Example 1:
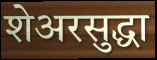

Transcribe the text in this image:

शेअरसुद्धा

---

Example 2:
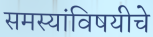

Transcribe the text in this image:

समस्यांविषयीचे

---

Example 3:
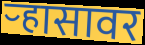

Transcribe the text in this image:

ऱ्हासावर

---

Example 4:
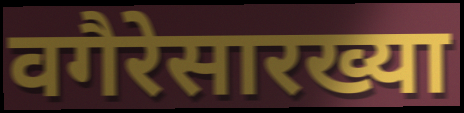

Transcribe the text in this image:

वगैरेसारख्या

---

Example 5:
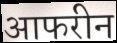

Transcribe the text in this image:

आफरीन